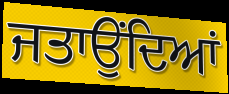
ਜਤਾਉੰਦਿਆਂ